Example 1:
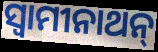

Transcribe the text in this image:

ସ୍ବାମୀନାଥନ୍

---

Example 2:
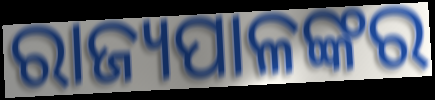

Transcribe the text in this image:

ରାଜ୍ୟପାଳଙ୍କର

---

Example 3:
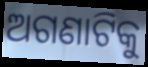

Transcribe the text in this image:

ଅଗଣାଟିକୁ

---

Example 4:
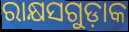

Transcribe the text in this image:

ରାକ୍ଷସଗୁଡ଼ାକ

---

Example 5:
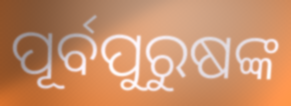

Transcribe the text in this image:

ପୂର୍ବପୁରୁଷଙ୍କ